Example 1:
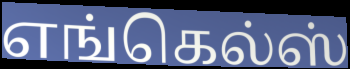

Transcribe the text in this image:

எங்கெல்ஸ்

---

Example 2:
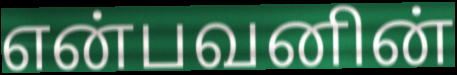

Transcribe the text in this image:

என்பவனின்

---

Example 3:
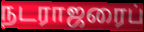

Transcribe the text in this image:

நடராஜரைப்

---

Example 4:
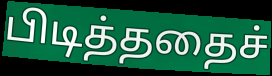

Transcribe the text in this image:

பிடித்ததைச்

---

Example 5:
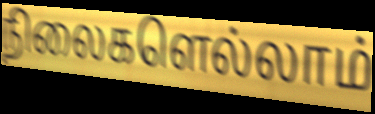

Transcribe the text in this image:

நிலைகளெல்லாம்